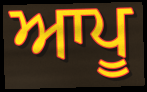
ਆਪੂ